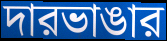
দারভাঙার